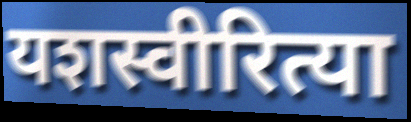
यशस्वीरित्या